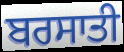
ਬਰਸਾਤੀ